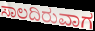
ಸಾಲದಿರುವಾಗ